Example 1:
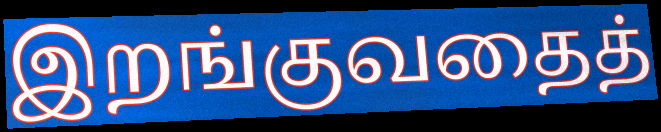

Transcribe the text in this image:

இறங்குவதைத்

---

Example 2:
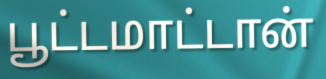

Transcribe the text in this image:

பூட்டமாட்டான்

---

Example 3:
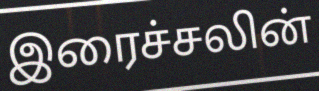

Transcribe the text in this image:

இரைச்சலின்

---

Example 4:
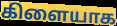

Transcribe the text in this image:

கிளையாக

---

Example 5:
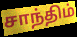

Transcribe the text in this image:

சாந்திம்